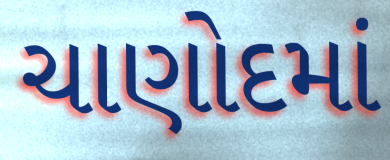
ચાણોદમાં